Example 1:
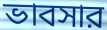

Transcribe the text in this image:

ভাবসার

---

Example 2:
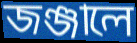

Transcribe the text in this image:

জঞ্জালে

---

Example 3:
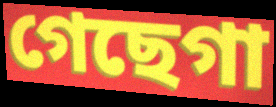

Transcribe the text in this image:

গেছেগা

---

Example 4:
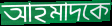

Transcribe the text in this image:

আহমাদকে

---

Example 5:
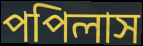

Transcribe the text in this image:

পপিলাস